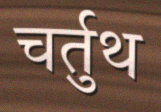
चर्तुथ